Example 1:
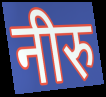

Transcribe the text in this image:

नीरु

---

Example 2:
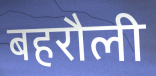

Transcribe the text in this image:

बहरौली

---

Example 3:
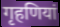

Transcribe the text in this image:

गृहणियां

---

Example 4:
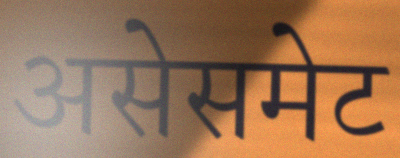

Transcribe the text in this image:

असेसमेट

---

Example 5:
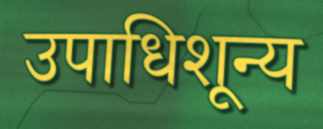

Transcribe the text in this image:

उपाधिशून्य